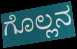
ಗೊಲ್ಲನ